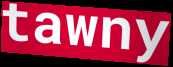
tawny